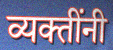
व्यक्तींनी